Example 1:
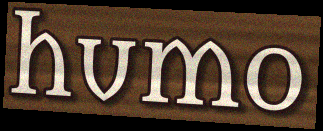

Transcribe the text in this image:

humo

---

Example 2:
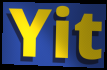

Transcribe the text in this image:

Yit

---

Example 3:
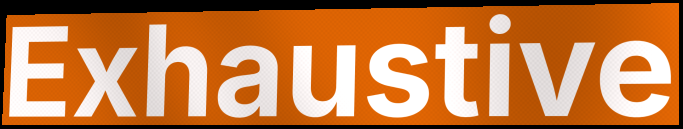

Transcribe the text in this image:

Exhaustive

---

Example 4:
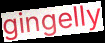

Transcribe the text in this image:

gingelly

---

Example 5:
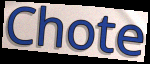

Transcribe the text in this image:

Chote